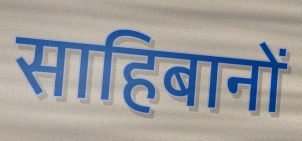
साहिबानों